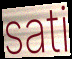
sati